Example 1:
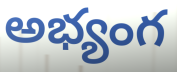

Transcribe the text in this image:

అభ్యంగ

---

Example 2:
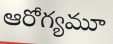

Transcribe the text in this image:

ఆరోగ్యమూ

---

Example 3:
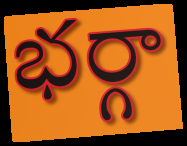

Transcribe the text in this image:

భర్గా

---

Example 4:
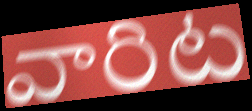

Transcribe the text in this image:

వారిట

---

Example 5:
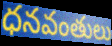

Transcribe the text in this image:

ధనవంతులు